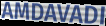
AMDAVADI